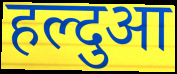
हल्दुआ